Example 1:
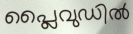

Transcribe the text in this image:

പ്ലൈവുഡിൽ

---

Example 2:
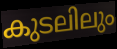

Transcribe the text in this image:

കുടലിലും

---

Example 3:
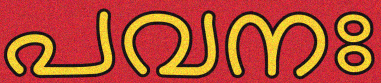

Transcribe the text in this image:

പവനഃ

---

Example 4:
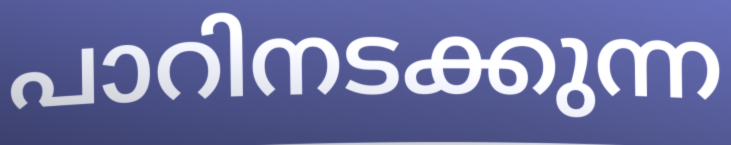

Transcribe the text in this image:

പാറിനടക്കുന്ന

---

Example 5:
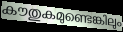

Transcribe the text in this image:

കൗതുകമുണ്ടെങ്കിലും